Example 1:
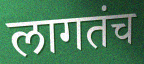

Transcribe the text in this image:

लागतंच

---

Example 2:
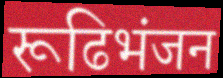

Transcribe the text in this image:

रूढिभंजन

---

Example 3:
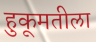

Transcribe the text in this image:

हुकूमतीला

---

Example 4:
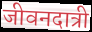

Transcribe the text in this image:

जीवनदात्री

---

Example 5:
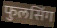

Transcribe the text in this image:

फुलसिंग